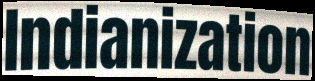
Indianization